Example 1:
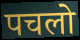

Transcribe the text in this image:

पचलो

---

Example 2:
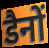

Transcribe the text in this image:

डैनों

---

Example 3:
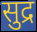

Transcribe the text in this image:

सुद्र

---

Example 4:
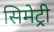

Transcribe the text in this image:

सिमेट्री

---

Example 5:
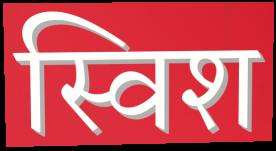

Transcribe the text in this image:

स्विश